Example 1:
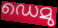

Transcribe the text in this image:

ഡെമു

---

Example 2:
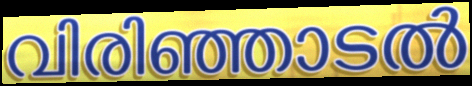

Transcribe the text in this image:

വിരിഞ്ഞാടൽ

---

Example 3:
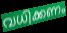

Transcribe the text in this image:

വധിക്കണം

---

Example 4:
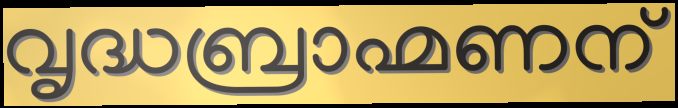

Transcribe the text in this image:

വൃദ്ധബ്രാഹ്മണന്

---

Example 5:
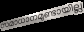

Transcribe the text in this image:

സമാധാനമുണ്ടായില്ല